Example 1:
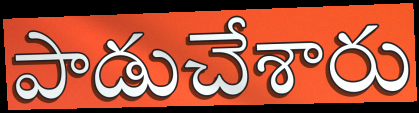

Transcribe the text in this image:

పాడుచేశారు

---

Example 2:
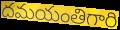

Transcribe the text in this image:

దమయంతిగారి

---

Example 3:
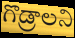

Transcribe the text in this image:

గొడ్రాలని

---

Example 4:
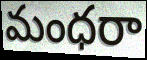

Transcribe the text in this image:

మంధరా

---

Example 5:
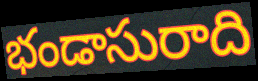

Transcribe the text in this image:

భండాసురాది